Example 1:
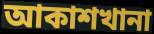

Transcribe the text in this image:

আকাশখানা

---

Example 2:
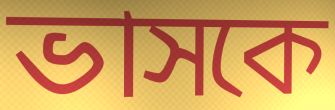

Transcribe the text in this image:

ভাসকে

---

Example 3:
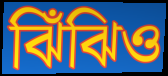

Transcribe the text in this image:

ঝিঁঝিও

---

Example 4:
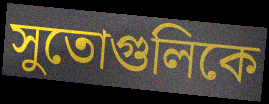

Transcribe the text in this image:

সুতোগুলিকে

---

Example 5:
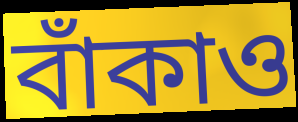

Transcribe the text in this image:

বাঁকাও